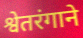
श्वेतरंगाने